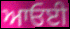
ਆਓਈ